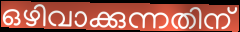
ഒഴിവാക്കുന്നതിന്